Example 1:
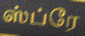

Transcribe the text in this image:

ஸ்ப்ரே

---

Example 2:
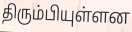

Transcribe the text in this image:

திரும்பியுள்ளன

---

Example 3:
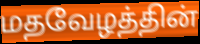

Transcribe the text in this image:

மதவேழத்தின்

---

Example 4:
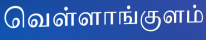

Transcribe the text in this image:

வெள்ளாங்குளம்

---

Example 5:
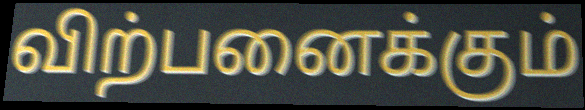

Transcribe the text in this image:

விற்பனைக்கும்